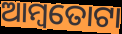
ଆମ୍ବତୋଟା